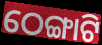
ଠେଙ୍ଗାଟି